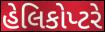
હેલિકોપ્ટરે